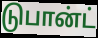
டுபான்ட்